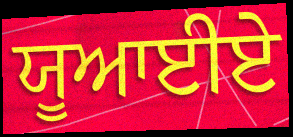
ਯੂਆਈਏ